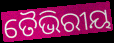
ତୈଭିରୀୟ